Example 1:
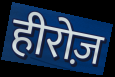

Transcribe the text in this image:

हीरोज़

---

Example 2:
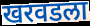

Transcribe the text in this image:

खरवडला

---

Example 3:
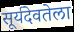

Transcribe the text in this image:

सूर्यदेवतेला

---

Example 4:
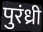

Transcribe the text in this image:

पुरंध्री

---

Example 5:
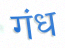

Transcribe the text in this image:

गंध